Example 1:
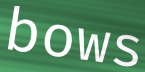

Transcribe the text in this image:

bows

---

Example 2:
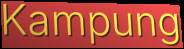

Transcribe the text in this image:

Kampung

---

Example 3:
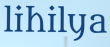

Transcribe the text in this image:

lihilya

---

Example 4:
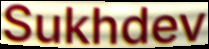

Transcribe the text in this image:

Sukhdev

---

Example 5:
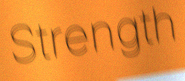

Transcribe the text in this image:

Strength